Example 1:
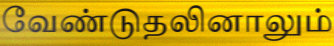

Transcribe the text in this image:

வேண்டுதலினாலும்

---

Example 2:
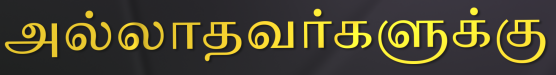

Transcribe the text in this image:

அல்லாதவர்களுக்கு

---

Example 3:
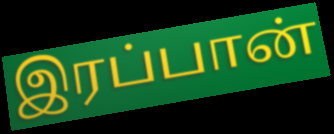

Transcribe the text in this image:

இரப்பான்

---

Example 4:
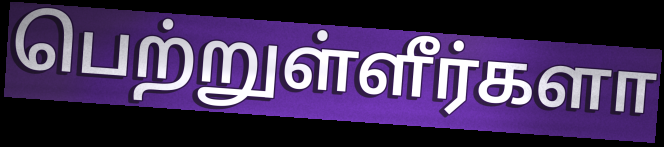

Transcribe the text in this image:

பெற்றுள்ளீர்களா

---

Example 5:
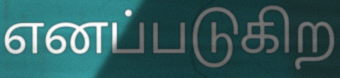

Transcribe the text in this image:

எனப்படுகிற